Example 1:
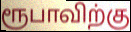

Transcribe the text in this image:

ரூபாவிற்கு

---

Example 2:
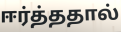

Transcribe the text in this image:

ஈர்த்ததால்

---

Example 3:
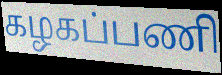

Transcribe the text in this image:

கழகப்பணி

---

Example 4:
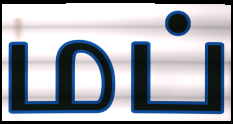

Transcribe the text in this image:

மப்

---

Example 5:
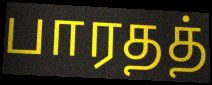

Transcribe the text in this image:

பாரதத்